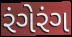
રંગેરંગ